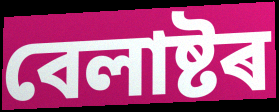
বেলাষ্টৰ